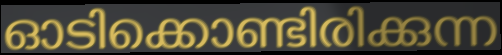
ഓടിക്കൊണ്ടിരിക്കുന്ന